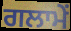
ਗਲਾਮੇਂ